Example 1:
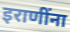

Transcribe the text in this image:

इराणींना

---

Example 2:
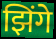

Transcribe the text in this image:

झिंगे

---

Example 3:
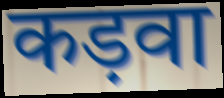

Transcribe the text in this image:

कड़वा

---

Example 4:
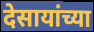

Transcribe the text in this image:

देसायांच्या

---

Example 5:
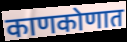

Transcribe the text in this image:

काणकोणात